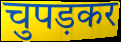
चुपड़कर